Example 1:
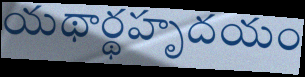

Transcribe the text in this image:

యథార్థహృదయం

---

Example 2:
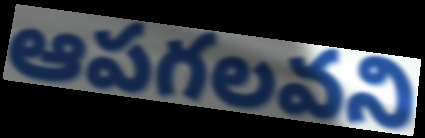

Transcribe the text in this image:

ఆపగలవని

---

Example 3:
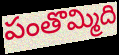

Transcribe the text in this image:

పంతొమ్మిది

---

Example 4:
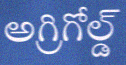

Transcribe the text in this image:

అగ్రిగోల్డ్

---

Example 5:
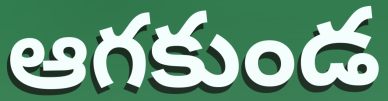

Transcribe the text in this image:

ఆగకుండ